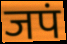
जपं